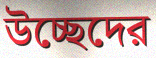
উচ্ছেদের